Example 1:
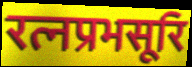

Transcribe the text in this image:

रत्नप्रभसूरि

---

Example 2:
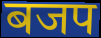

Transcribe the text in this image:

बजप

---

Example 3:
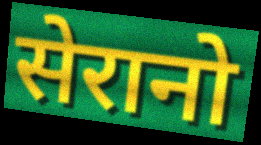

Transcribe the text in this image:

सेरानो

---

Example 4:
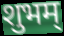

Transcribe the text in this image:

शुभम्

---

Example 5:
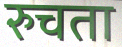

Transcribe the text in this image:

रुचता